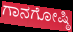
ಗಾನಗೋಷ್ಠಿ